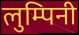
लुम्पिनी